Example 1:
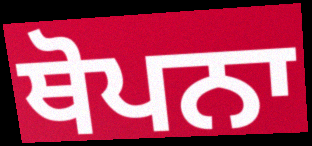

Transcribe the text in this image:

ਥੋਪਨਾ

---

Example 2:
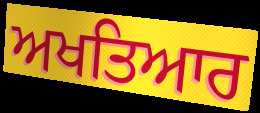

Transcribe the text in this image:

ਅਖਤਿਆਰ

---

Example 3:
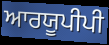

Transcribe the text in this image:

ਆਰਯੂਪੀਪੀ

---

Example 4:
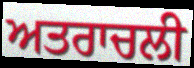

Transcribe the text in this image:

ਅਤਰਾਚਲੀ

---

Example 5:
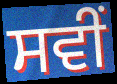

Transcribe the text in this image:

ਸਵੀਂ